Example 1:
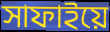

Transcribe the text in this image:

সাফাইয়ে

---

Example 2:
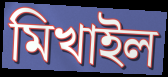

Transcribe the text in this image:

মিখাইল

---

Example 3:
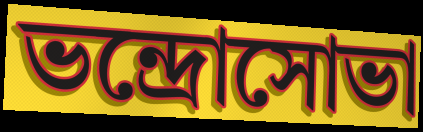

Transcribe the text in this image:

ভন্দ্রোসোভা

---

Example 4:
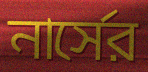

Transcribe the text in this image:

নার্সের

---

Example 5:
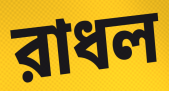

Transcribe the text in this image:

রাধল